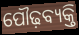
ପୌଢ଼ବ୍ୟକ୍ତି